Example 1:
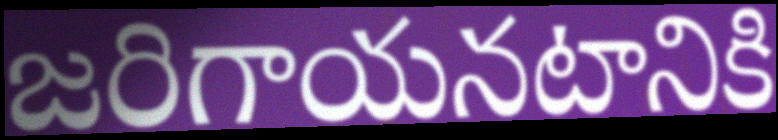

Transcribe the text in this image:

జరిగాయనటానికి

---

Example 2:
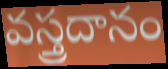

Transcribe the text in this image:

వస్త్రదానం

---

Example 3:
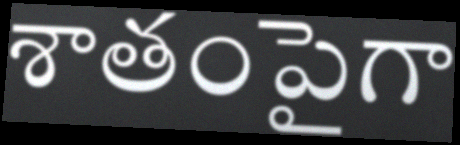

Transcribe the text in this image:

శాతంపైగా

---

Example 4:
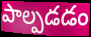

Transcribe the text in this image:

పాల్పడడం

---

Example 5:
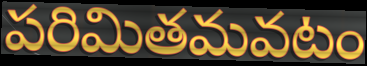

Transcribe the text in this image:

పరిమితమవటం